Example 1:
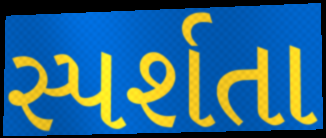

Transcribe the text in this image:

સ્પર્શતા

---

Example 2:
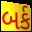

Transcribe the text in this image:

બર્ક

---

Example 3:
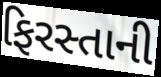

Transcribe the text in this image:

ફિરસ્તાની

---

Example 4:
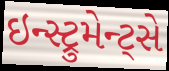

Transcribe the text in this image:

ઇન્સ્ટ્રુમેન્ટ્સે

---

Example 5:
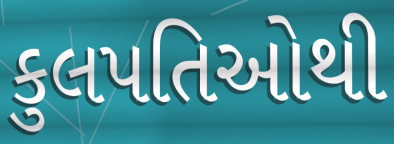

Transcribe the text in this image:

કુલપતિઓથી